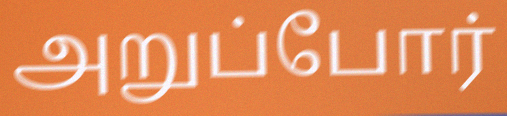
அறுப்போர்